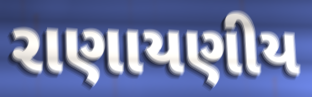
રાણાયણીય